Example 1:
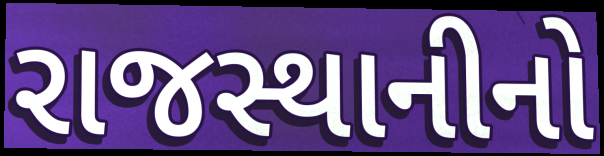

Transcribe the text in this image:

રાજસ્થાનીનો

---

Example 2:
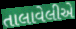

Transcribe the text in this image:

તાલાવેલીએ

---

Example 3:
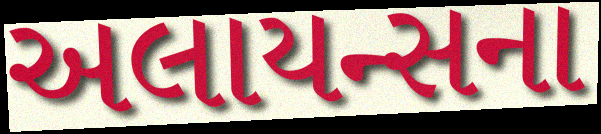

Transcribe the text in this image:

અલાયન્સના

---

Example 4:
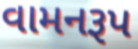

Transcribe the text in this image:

વામનરૂપ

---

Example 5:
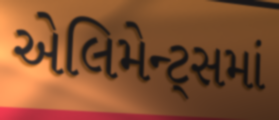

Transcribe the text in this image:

એલિમેન્ટ્સમાં